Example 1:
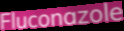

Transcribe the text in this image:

Fluconazole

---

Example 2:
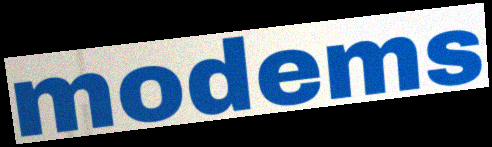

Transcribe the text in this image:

modems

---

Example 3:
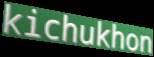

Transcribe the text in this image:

kichukhon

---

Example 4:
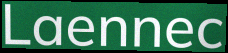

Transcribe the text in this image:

Laennec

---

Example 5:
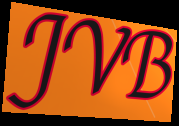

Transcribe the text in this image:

JVB